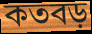
কতবড়